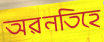
অৱনতিহে